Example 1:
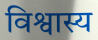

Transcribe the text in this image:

विश्वास्य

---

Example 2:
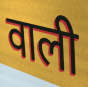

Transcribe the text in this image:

वाली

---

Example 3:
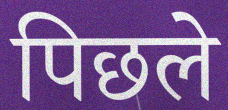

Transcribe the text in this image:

पिछले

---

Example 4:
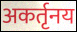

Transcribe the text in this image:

अकर्तृनय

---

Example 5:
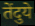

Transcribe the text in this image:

तेंदुये